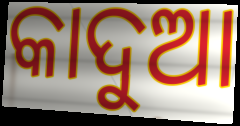
କାଦୁଆ